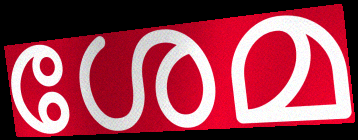
ശേമ